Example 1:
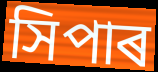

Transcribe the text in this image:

সিপাৰ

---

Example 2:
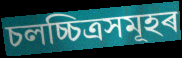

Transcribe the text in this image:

চলচ্চিত্ৰসমূহৰ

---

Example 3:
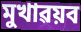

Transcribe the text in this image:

মুখাৱয়ব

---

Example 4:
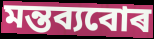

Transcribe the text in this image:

মন্তব্যবোৰ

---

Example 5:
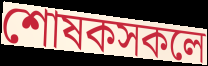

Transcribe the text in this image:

শোষকসকলে